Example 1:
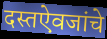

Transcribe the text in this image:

दस्तऐवजांचे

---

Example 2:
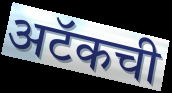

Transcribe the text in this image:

अटॅकची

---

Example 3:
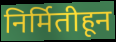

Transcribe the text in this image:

निर्मितीहून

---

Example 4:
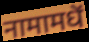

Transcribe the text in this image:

नामामधें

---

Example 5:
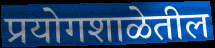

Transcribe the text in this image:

प्रयोगशाळेतील